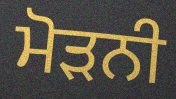
ਮੋੜਨੀ